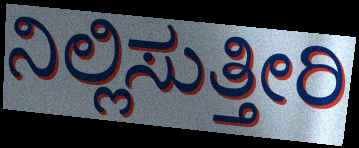
ನಿಲ್ಲಿಸುತ್ತೀರಿ